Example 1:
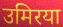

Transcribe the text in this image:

उमिरया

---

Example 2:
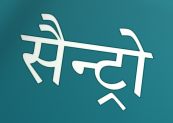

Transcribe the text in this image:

सैन्ट्रो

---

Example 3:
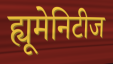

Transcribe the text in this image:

ह्यूमेनिटीज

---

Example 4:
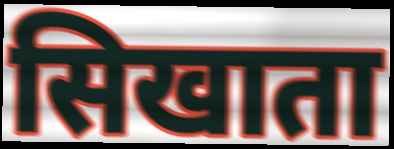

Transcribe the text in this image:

सिखाता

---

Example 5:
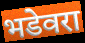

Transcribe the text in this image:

भडेवरा